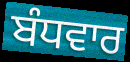
ਬੰਧਵਾਰ